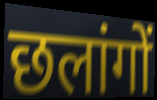
छलांगों